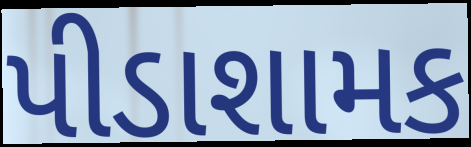
પીડાશામક